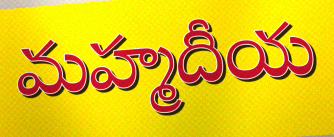
మహ్మదీయ